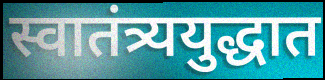
स्वातंत्र्ययुद्धात